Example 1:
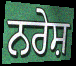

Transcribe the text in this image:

ਨਰੇਸ਼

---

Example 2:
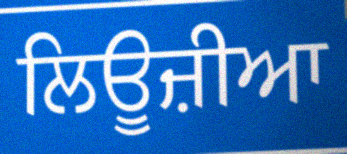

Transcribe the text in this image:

ਲਿਊਜ਼ੀਆ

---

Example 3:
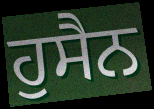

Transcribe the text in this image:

ਹੁਸੈਨ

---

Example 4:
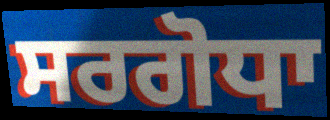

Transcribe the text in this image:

ਸਰਗੋਧਾ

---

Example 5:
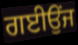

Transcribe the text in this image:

ਗਈਉਂਜ